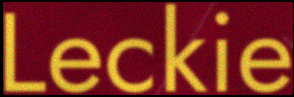
Leckie